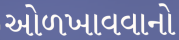
ઓળખાવવાનો